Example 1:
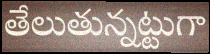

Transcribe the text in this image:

తేలుతున్నట్టుగా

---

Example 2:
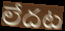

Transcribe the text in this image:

లేదట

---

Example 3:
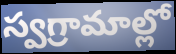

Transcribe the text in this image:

స్వగ్రామాల్లో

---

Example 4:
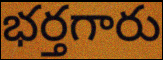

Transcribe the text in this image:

భర్తగారు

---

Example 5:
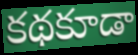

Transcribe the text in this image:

కథకూడా